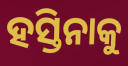
ହସ୍ତିନାକୁ